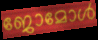
ജോമോൾ